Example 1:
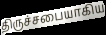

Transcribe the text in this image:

திருச்சபையாகிய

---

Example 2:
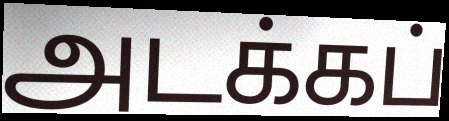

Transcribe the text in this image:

அடக்கப்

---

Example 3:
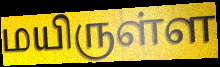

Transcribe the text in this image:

மயிருள்ள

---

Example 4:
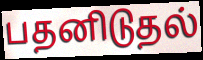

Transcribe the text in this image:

பதனிடுதல்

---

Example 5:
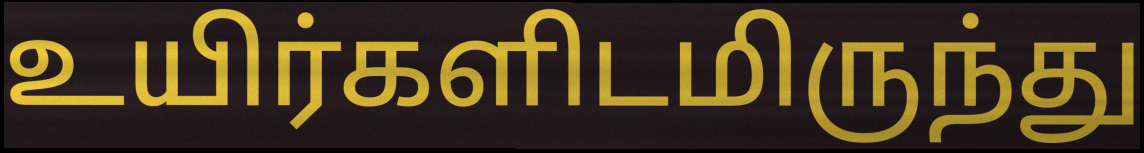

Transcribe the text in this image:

உயிர்களிடமிருந்து